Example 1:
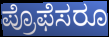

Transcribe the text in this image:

ಪ್ರೊಫೆಸರೂ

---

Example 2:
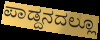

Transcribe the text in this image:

ಪಾಡ್ದನದಲ್ಲೂ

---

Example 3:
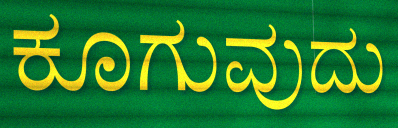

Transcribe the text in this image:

ಕೂಗುವುದು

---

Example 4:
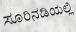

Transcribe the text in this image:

ಸೂರಿನಡಿಯಲ್ಲಿ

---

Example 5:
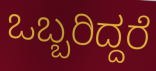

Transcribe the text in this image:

ಒಬ್ಬರಿದ್ದರೆ